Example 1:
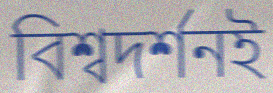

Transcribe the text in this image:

বিশ্বদর্শনই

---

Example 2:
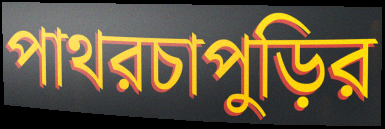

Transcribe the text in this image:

পাথরচাপুড়ির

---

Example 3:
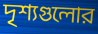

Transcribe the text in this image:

দৃশ্যগুলোর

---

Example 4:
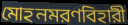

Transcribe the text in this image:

মোহনমরণবিহারী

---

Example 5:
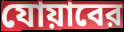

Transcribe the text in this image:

যোয়াবের